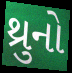
થ્રુનો